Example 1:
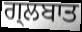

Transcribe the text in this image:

ਗ੍ਲਬਾਤ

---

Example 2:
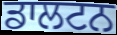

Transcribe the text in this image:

ਡਾਲਟਨ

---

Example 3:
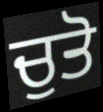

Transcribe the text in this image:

ਚੁਤੋ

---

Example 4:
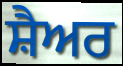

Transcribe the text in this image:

ਸ਼ੈਅਰ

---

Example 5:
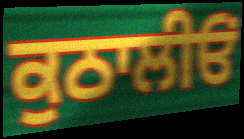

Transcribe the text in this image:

ਕੁਠਾਲੀਓਂ